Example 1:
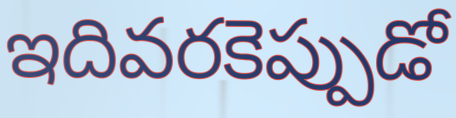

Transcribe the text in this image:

ఇదివరకెప్పుడో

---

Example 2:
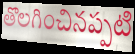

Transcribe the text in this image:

తొలగించినప్పటి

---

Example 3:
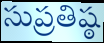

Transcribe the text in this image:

సుప్రతిష్ఠ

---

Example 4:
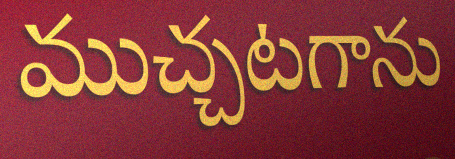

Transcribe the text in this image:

ముచ్చటగాను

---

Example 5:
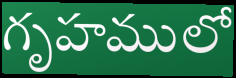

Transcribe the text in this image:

గృహములో